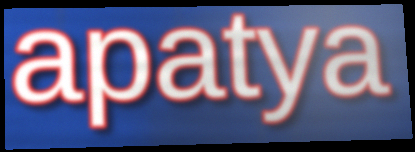
apatya